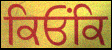
ਕਿਓਂਕਿ